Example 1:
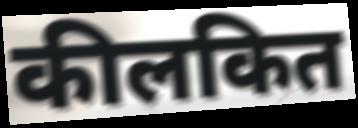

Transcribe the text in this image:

कीलकित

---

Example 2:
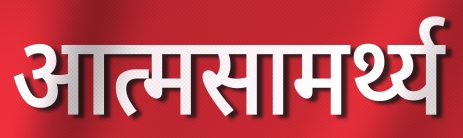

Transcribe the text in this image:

आत्मसामर्थ्य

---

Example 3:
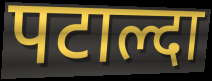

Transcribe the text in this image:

पटाल्दा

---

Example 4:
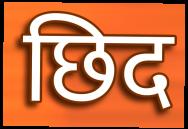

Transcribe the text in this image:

छिद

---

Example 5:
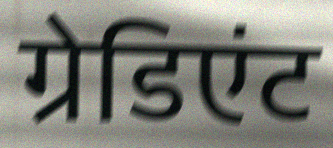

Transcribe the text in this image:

ग्रेडिएंट